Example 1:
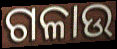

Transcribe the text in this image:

ଗଳାଉ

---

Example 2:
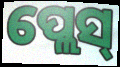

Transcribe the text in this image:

ପ୍ଲେସ୍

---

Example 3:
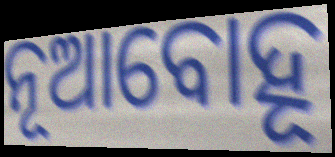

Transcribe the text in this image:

ନୂଆବୋହୂ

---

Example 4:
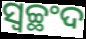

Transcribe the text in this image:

ସ୍ୱଚ୍ଛଂଦ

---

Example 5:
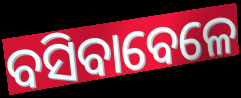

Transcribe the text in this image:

ବସିବାବେଳେ